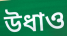
উধাও